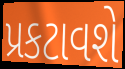
પ્રકટાવશે